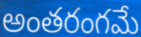
అంతరంగమే